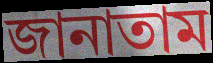
জানাতাম